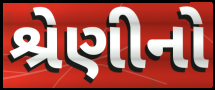
શ્રેણીનો